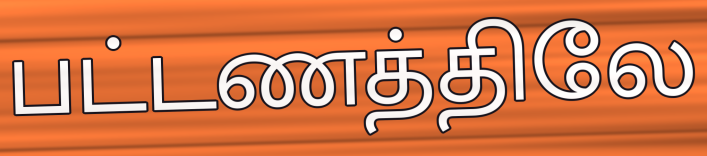
பட்டணத்திலே